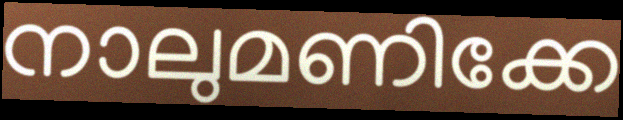
നാലുമണിക്കേ